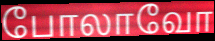
போலாவோ